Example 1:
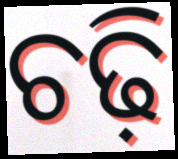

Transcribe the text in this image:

ଚଢ଼ି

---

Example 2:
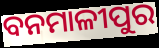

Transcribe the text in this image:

ବନମାଳୀପୁର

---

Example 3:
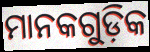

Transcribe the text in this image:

ମାନକଗୁଡ଼ିକ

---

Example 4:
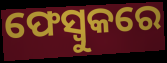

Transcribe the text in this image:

ଫେସ୍ବୁକରେ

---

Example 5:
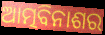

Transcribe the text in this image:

ଆତ୍ମବିନାଶର